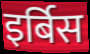
इर्बिस